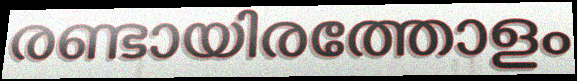
രണ്ടായിരത്തോളം